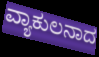
ವ್ಯಾಕುಲನಾದ